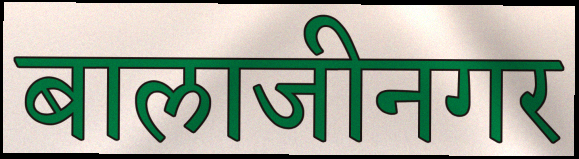
बालाजीनगर